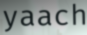
yaach